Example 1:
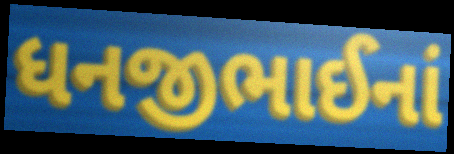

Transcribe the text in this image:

ધનજીભાઈનાં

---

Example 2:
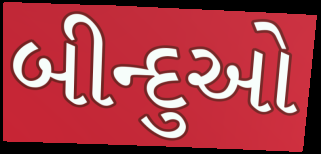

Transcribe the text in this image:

બીન્દુઓ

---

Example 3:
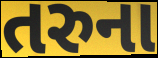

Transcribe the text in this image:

તરુના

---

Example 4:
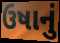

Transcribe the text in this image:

ઉષાનું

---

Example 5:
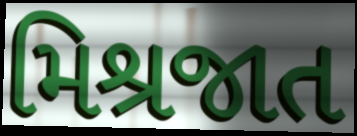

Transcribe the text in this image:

મિશ્રજાત